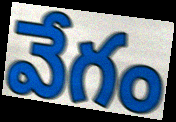
వేగం